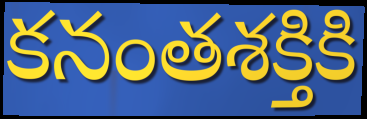
కనంతశక్తికి